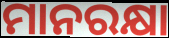
ମାନରକ୍ଷା